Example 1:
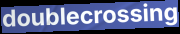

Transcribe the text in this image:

doublecrossing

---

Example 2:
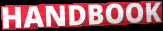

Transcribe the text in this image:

HANDBOOK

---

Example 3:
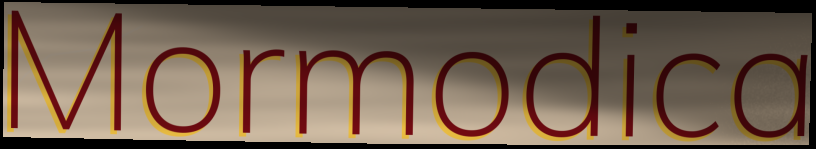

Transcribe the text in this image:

Mormodica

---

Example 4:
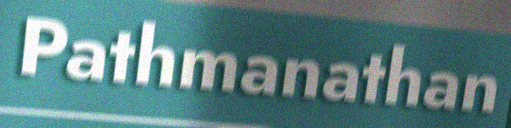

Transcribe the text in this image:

Pathmanathan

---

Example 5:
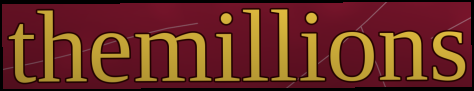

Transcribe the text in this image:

themillions